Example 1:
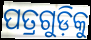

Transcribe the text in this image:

ପତ୍ରଗୁଡ଼ିକୁ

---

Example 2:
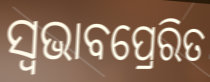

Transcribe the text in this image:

ସ୍ୱଭାବପ୍ରେରିତ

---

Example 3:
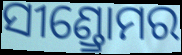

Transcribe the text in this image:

ସୀଣ୍ଡ୍ରୋମର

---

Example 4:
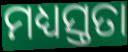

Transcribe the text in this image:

ମଧ୍ୟସ୍ତତା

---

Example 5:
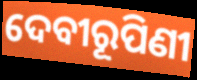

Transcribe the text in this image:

ଦେବୀରୂପିଣୀ